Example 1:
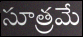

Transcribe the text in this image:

సూత్రమే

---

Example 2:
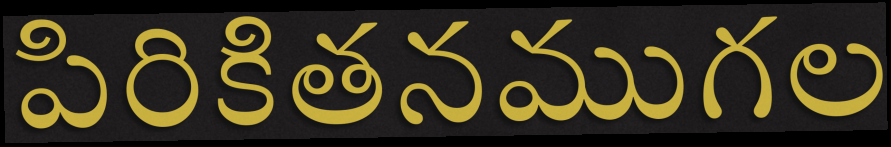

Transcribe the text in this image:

పిరికితనముగల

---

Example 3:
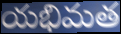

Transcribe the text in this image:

యభిమత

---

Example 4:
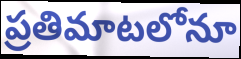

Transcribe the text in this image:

ప్రతిమాటలోనూ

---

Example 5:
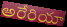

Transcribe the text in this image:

అరేరియా